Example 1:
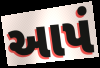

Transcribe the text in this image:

આપં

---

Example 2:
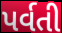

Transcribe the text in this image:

પર્વતી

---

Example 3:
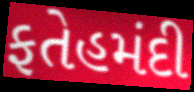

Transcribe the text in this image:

ફતેહમંદી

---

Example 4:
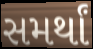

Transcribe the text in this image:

સમર્થાં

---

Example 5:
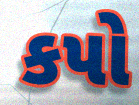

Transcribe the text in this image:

કપો